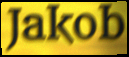
Jakob